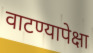
वाटण्यापेक्षा